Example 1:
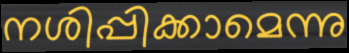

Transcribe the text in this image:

നശിപ്പിക്കാമെന്നു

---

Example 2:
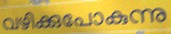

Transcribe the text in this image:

വഴിക്കുപോകുന്നു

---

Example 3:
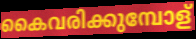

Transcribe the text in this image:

കൈവരിക്കുമ്പോള്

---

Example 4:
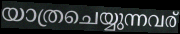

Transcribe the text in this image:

യാത്രചെയ്യുന്നവര്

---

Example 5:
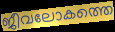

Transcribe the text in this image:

ജീവലോകത്തെ